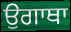
ਉਗਾਥਾ